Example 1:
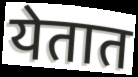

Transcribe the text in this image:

येतात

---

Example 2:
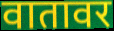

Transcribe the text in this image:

वातावर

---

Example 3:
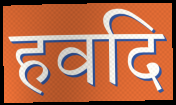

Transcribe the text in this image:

हवदि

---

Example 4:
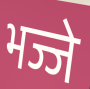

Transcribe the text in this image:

भज्जे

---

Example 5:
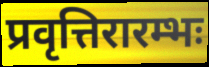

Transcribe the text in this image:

प्रवृत्तिरारम्भः